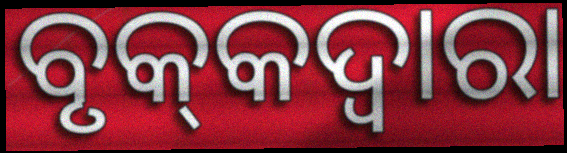
ବୃକ୍‌କଦ୍ଵାରା